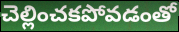
చెల్లించకపోవడంతో